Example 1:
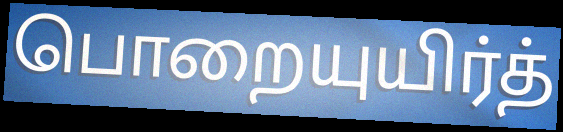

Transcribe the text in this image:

பொறையுயிர்த்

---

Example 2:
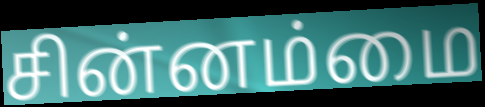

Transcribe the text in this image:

சின்னம்மை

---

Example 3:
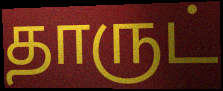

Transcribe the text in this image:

தாருட்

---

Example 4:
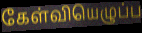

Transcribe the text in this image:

கேள்வியெழுப்ப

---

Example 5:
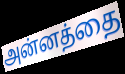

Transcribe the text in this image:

அன்னத்தை